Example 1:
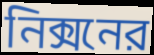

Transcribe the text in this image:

নিক্সনের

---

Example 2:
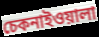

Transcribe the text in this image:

চেকনাইওয়ালা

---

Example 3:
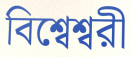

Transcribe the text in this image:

বিশ্বেশ্বরী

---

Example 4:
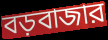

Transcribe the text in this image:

বড়বাজার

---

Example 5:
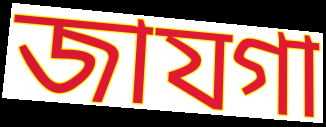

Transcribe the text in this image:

জাযগা